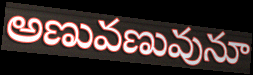
అణువణువునూ